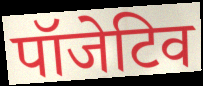
पॉजेटिव